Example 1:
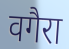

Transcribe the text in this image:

वगैरा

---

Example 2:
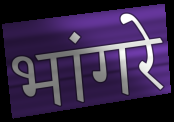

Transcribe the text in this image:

भांगरे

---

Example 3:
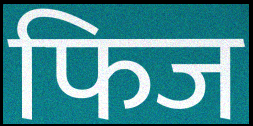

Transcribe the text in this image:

फिज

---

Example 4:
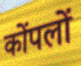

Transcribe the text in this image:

कोंपलों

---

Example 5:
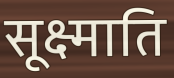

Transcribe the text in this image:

सूक्ष्माति